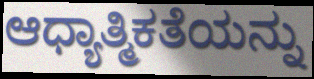
ಆಧ್ಯಾತ್ಮಿಕತೆಯನ್ನು